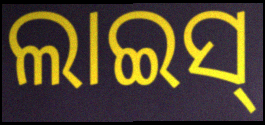
ଲାଇସ୍